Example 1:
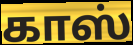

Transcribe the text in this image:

காஸ்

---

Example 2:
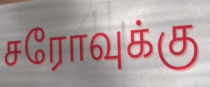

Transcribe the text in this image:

சரோவுக்கு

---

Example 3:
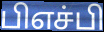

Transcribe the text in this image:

பிஎச்பி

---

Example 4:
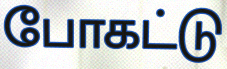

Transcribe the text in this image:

போகட்டு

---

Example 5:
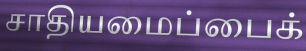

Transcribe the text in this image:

சாதியமைப்பைக்